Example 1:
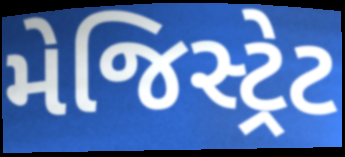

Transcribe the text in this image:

મેજિસ્ટ્રેટ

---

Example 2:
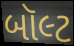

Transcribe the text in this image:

બૉલ્ટ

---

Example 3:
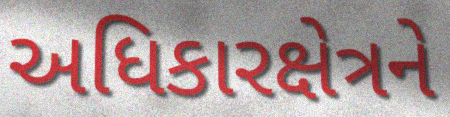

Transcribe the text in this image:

અધિકારક્ષેત્રને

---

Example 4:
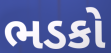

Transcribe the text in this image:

ભડકો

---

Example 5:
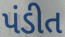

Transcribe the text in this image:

પંડીત